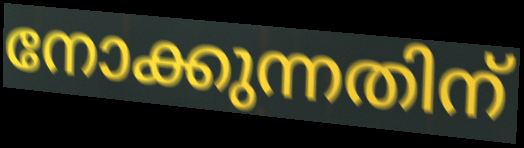
നോക്കുന്നതിന്